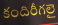
కందిరీగలై